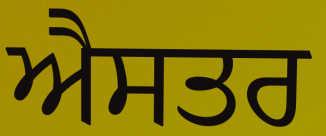
ਐਸਤਰ